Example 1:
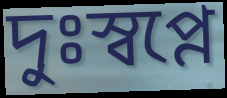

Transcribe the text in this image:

দুঃস্বপ্নে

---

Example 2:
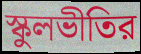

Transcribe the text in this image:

স্কুলভীতির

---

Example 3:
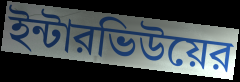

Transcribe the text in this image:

ইন্টারভিউয়ের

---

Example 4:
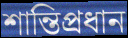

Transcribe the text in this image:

শান্তিপ্রধান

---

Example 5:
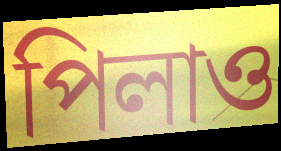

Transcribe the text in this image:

পিলাও